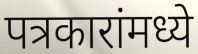
पत्रकारांमध्ये